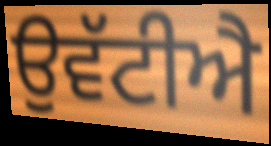
ਉਵੱਟੀਐ